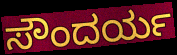
ಸೌಂದರ್ಯ